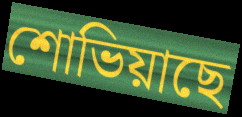
শোভিয়াছে